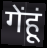
गेंहूं